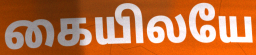
கையிலயே